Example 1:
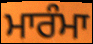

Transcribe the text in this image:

ਮਾਰੰਮਾ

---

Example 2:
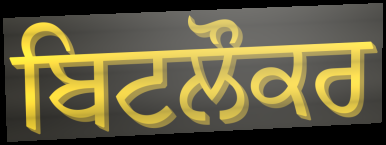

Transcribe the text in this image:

ਬਿਟਲੌਕਰ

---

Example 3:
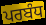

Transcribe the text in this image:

ਪਰਬੰਧ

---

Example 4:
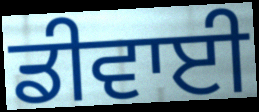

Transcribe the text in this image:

ਡੀਵਾਈ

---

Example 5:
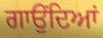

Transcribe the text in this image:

ਗਾਉਂਦਿਆਂ